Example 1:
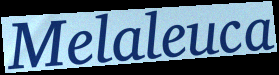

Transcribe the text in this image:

Melaleuca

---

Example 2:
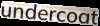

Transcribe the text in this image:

undercoat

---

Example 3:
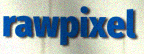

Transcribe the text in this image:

rawpixel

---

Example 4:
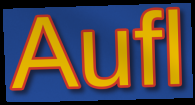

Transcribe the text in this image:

Aufl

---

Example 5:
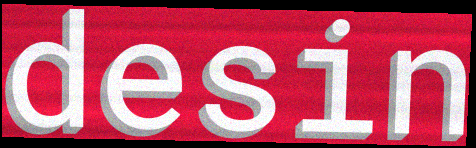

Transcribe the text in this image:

desin